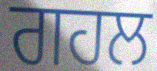
ਗਹਲ